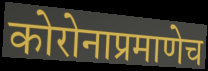
कोरोनाप्रमाणेच